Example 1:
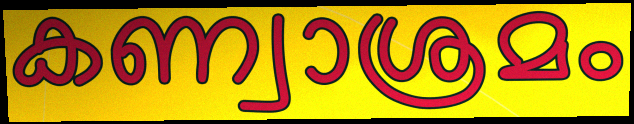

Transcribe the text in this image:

കണ്വാശ്രമം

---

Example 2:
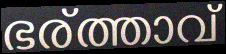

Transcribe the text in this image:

ഭര്ത്താവ്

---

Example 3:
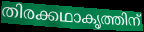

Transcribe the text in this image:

തിരക്കഥാകൃത്തിന്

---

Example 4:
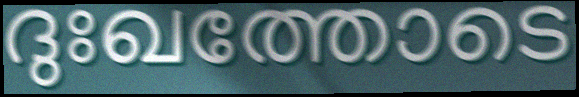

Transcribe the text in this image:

ദുഃഖത്തോടെ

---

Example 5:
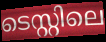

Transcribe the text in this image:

ടെസ്റ്റിലെ